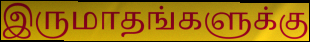
இருமாதங்களுக்கு